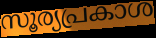
സൂര്യപ്രകാശ